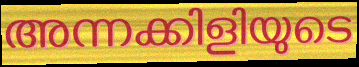
അന്നക്കിളിയുടെ